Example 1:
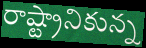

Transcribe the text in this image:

రాష్ట్రానికున్న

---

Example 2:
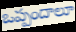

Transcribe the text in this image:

ఒప్పందాలూ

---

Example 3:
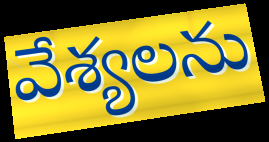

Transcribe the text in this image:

వేశ్యలను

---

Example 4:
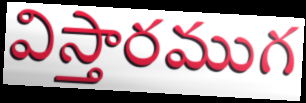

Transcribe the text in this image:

విస్తారముగ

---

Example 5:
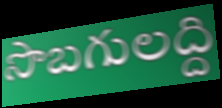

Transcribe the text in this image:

సొబగులద్ది